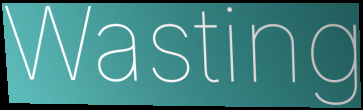
Wasting